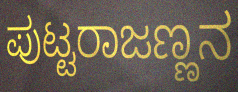
ಪುಟ್ಟರಾಜಣ್ಣನ